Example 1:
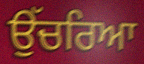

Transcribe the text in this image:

ਉੱਚਰਿਆ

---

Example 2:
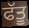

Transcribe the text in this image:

ਫੱਤੂ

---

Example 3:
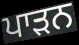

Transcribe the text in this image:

ਪਾੜਨ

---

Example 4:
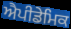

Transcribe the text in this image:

ਐਪੀਡੇਮਿਕ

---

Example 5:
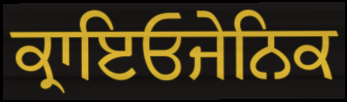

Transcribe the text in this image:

ਕ੍ਰਾਇਓਜੇਨਿਕ